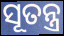
ସୂତନ୍ତ୍ର